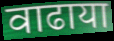
वाढाया